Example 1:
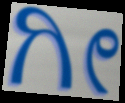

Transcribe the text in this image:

ಗೀ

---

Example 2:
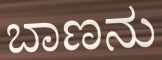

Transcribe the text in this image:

ಬಾಣನು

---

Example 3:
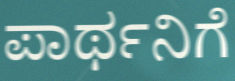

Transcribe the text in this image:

ಪಾರ್ಥನಿಗೆ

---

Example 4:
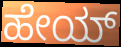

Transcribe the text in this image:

ಹೇಯ್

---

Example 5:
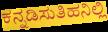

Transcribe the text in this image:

ಕನ್ನಡಿಸುತಿಹನಿಲ್ಲಿ